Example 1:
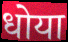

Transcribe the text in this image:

धोया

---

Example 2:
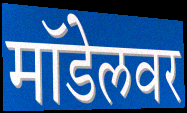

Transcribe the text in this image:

मॉडेलवर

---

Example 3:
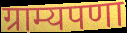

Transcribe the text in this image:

ग्राम्यपणा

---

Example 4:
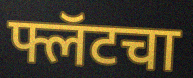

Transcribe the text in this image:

फ्लॅटचा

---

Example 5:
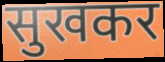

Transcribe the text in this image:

सुखकर